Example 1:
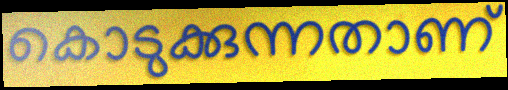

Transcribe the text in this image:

കൊടുക്കുന്നതാണ്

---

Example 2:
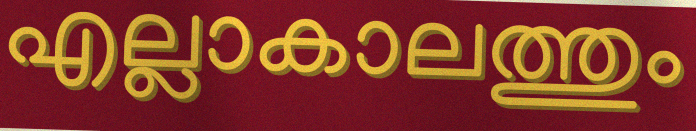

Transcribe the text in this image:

എല്ലാകാലത്തും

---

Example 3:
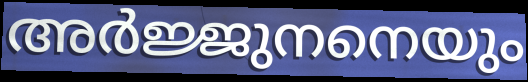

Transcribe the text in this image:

അർജ്ജുനനെയും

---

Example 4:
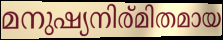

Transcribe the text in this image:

മനുഷ്യനിര്മിതമായ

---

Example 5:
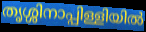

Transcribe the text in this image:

തൃശ്ശിനാപ്പിള്ളിയിൽ